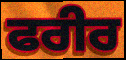
ਫਰੀਰ